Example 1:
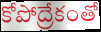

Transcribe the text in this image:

కోపోద్రేకంతో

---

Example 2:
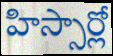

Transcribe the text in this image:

హిస్సార్లో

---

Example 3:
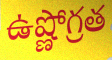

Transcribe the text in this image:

ఉష్ణోగ్రత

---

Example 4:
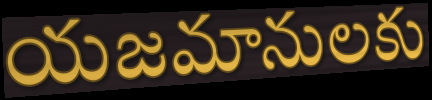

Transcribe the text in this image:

యజమానులకు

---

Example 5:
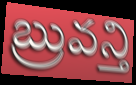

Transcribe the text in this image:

బ్రువన్తి